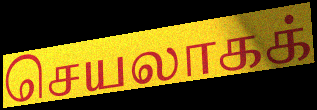
செயலாகக்